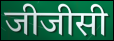
जीजीसी